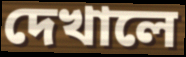
দেখালে